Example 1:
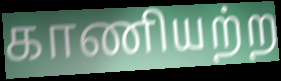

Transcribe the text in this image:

காணியற்ற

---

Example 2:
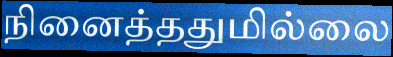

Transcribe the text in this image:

நினைத்ததுமில்லை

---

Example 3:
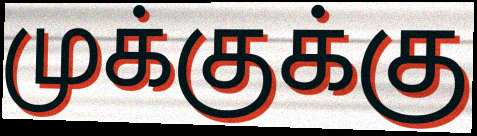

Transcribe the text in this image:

முக்குக்கு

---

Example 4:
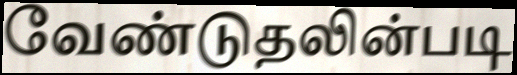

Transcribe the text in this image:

வேண்டுதலின்படி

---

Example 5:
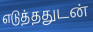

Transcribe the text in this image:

எடுத்ததுடன்